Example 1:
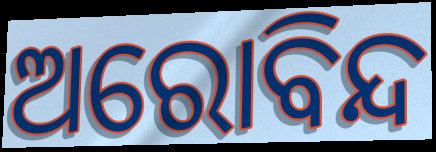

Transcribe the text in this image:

ଅରୋବିନ୍ଦ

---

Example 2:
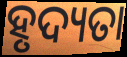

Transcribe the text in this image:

ହୃଦ୍ୟତା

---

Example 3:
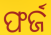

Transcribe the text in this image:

ଫର୍ଜ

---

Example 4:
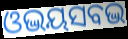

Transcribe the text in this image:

ଓଦ୍ଭୟସବଦ୍ଭ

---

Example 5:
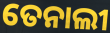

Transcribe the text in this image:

ତେନାଲୀ